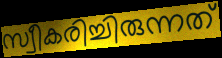
സ്വീകരിച്ചിരുന്നത്